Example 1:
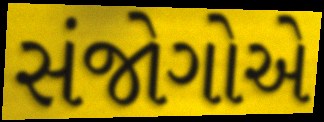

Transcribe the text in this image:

સંજોગોએ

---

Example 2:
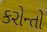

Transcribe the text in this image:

કરોન્તો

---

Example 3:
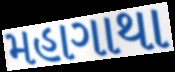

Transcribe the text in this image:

મહાગાથા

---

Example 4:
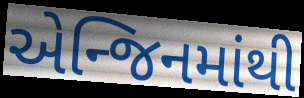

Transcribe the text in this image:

એન્જિનમાંથી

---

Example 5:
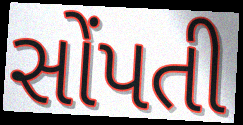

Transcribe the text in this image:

સોંપતી